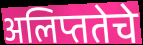
अलिप्ततेचे